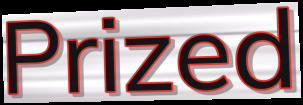
Prized